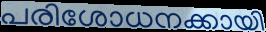
പരിശോധനക്കായി